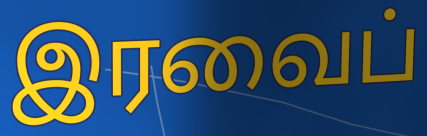
இரவைப்